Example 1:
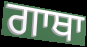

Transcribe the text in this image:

ਗਾਥਾ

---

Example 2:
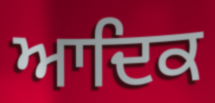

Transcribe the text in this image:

ਆਦਿਕ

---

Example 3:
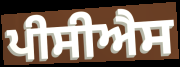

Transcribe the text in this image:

ਪੀਸੀਐਸ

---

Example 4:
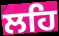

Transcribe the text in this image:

ਲਹਿ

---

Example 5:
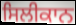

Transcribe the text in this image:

ਸਿਲੀਕਾਨ